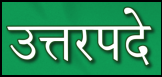
उत्तरपदे